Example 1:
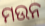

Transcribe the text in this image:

ମଉନ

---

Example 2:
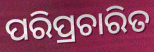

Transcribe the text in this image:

ପରିପ୍ରଚାରିତ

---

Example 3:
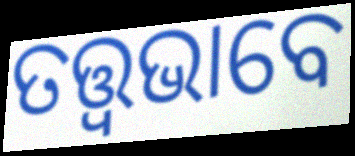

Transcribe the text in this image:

ତତ୍ତ୍ଵଭାବେ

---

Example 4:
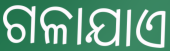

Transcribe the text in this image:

ଗଳାଯାଏ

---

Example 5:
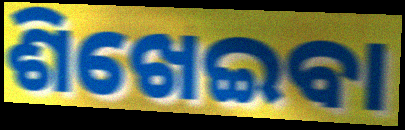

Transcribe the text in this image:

ଶିଖେଇବା